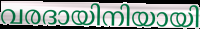
വരദായിനിയായി